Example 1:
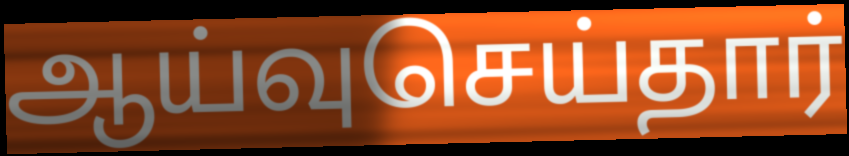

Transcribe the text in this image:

ஆய்வுசெய்தார்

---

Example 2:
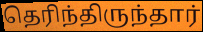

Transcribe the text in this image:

தெரிந்திருந்தார்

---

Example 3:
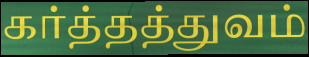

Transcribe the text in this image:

கர்த்தத்துவம்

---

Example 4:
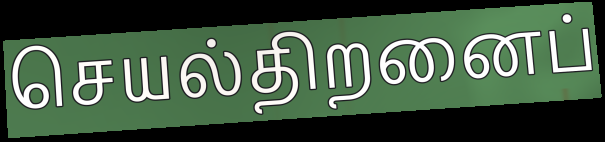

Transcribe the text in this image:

செயல்திறனைப்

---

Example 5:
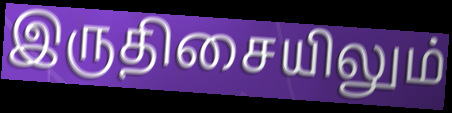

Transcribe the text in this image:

இருதிசையிலும்